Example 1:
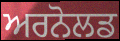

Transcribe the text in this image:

ਅਰਨੋਲਡ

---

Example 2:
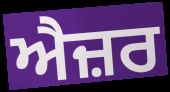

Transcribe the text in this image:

ਐਜ਼ਰ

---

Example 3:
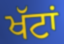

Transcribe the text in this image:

ਖੱਟਾਂ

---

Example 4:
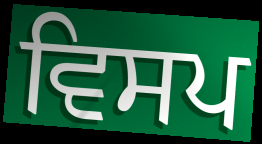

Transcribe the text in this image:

ਵਿਸਪ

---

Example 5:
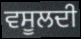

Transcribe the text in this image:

ਵਸੂਲਦੀ